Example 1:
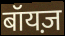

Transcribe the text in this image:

बॉयज़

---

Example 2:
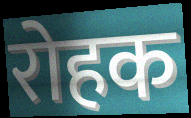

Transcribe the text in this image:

रोहक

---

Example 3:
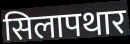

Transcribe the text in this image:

सिलापथार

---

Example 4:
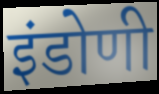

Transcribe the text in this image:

इंडोणी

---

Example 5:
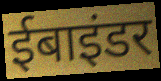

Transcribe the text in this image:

ईबाइंडर